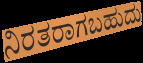
ನಿರತರಾಗಬಹುದು